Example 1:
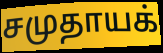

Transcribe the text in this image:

சமுதாயக்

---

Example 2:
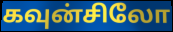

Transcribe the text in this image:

கவுன்சிலோ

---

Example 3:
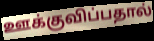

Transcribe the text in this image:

ஊக்குவிப்பதால்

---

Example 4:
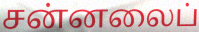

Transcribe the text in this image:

சன்னலைப்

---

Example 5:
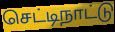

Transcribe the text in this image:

செட்டிநாட்டு